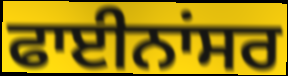
ਫਾਈਨਾਂਸਰ